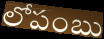
లోపంబు